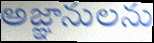
అజ్ఞానులను